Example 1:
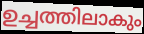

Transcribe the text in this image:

ഉച്ചത്തിലാകും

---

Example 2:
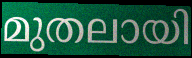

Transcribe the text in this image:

മുതലായി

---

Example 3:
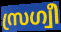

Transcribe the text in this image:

സ്രഗ്വീ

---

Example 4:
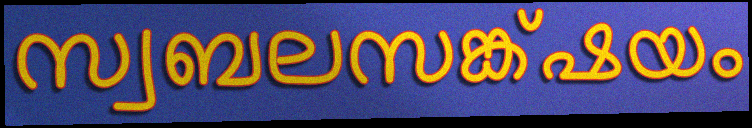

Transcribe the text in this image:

സ്വബലസങ്ക്ഷയം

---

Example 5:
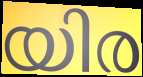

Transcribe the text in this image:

യിര